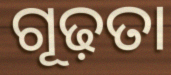
ଗୂଢ଼ତା